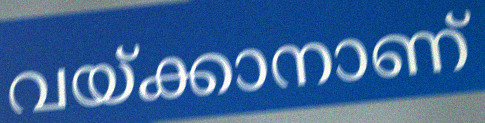
വയ്ക്കാനാണ്